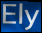
Ely